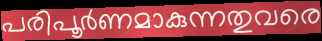
പരിപൂർണമാകുന്നതുവരെ